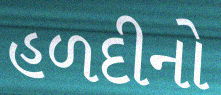
હળદીનો